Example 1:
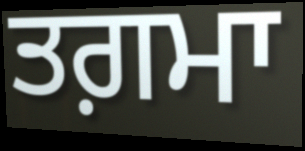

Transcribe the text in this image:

ਤਗ਼ਮਾ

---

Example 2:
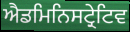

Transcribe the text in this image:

ਐਡਮਿਨਿਸਟ੍ਰੇਟਿਵ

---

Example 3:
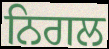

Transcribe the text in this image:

ਨਿਗਲ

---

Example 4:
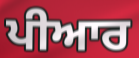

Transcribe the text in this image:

ਪੀਆਰ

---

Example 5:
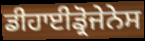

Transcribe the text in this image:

ਡੀਹਾਈਡ੍ਰੋਜੇਨੇਸ